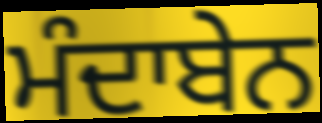
ਮੰਦਾਬੇਨ